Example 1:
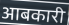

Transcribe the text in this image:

आबकारी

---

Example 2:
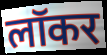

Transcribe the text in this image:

लॉकर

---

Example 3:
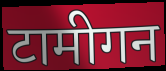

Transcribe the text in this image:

टामीगन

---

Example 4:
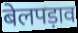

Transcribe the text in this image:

बेलपड़ाव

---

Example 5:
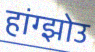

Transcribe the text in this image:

हांग्झोउ